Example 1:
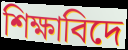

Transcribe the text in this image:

শিক্ষাবিদে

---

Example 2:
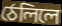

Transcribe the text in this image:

ঠেলিলে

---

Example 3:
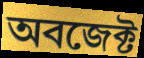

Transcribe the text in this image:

অবজেক্ট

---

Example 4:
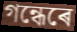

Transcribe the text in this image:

গন্ধেৰে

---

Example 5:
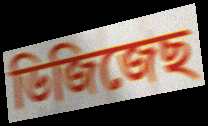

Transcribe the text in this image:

ডিজিজেছ